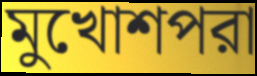
মুখোশপরা